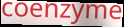
coenzyme